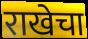
राखेचा